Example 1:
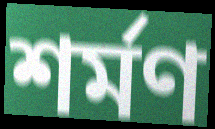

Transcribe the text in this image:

শর্মণ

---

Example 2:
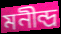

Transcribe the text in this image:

মনীন্দ্র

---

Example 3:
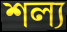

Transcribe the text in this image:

শল্য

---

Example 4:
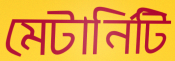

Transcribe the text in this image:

মেটার্নিটি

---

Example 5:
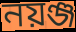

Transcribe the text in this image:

নয়ঞ্জ